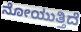
ನೋಯುತ್ತಿದೆ